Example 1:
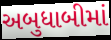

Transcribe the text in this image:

અબુધાબીમાં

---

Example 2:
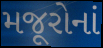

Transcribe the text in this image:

મજૂરોનાં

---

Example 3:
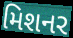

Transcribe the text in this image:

મિશનર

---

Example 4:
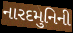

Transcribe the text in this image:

નારદમુનિની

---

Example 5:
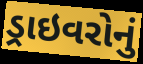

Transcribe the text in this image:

ડ્રાઇવરોનું